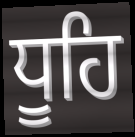
ਧੂਹਿ